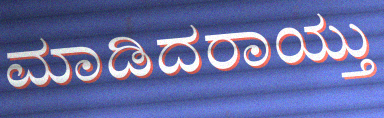
ಮಾಡಿದರಾಯ್ತು